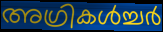
അഗ്രികൾച്ചർ